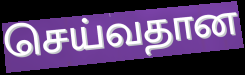
செய்வதான